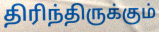
திரிந்திருக்கும்